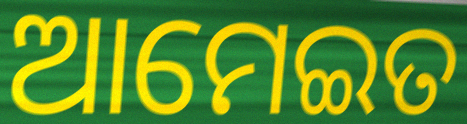
ଆମେଇତ